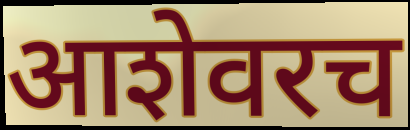
आशेवरच